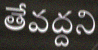
తేవద్దని